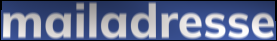
mailadresse